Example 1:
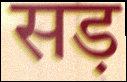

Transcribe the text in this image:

सड़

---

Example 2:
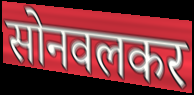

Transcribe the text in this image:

सोनवलकर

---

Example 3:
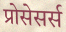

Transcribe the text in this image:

प्रोसेसर्स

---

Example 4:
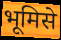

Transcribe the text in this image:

भूमिसे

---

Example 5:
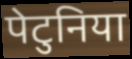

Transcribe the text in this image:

पेटुनिया